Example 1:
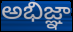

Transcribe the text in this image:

అభిజ్ఞా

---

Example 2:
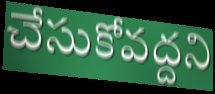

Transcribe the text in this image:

చేసుకోవద్దని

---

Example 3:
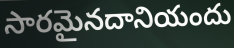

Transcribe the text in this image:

సారమైనదానియందు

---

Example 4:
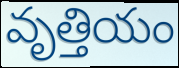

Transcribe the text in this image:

వృత్తియం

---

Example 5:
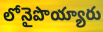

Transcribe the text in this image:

లోనైపొయ్యారు